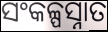
ସଂକଳ୍ପସ୍ନାତ